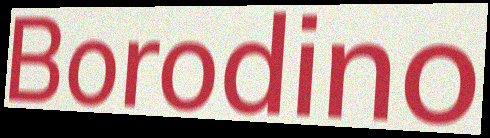
Borodino